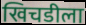
खिचडीला